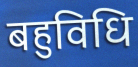
बहुविधि